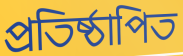
প্ৰতিষ্ঠাপিত